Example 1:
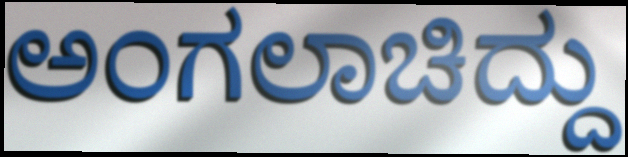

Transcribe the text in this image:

ಅಂಗಲಾಚಿದ್ದು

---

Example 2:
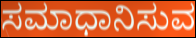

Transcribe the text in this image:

ಸಮಾಧಾನಿಸುವ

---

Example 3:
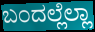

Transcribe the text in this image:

ಬಂದಲ್ಲೆಲ್ಲಾ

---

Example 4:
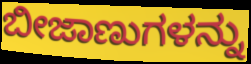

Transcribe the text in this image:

ಬೀಜಾಣುಗಳನ್ನು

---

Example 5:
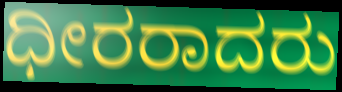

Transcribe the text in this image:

ಧೀರರಾದರು